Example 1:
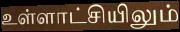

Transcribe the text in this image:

உள்ளாட்சியிலும்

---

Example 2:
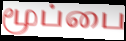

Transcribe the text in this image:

மூப்பை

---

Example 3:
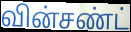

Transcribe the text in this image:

வின்சண்ட்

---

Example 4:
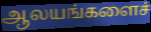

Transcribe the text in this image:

ஆலயங்களைச்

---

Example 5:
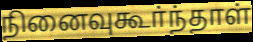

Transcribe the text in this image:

நினைவுகூர்ந்தாள்